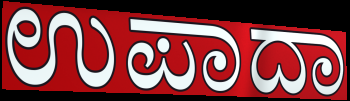
ಉಪಾದಾ